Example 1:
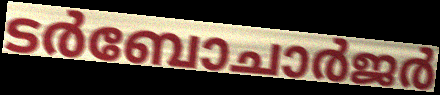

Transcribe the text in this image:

ടർബോചാർജർ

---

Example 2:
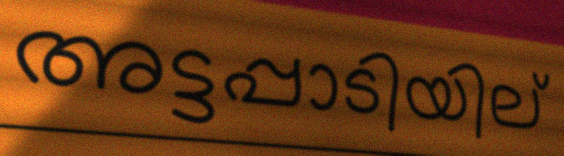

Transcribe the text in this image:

അട്ടപ്പാടിയില്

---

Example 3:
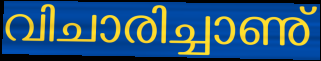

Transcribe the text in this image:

വിചാരിച്ചാണു്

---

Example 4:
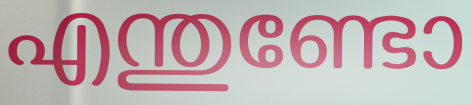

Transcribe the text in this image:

എന്തുണ്ടോ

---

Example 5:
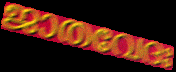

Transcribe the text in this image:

ജാതവേദഃ